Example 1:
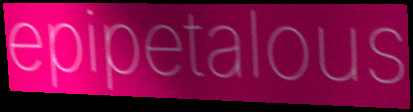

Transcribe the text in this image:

epipetalous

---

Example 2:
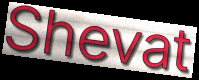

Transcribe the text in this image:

Shevat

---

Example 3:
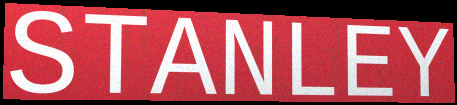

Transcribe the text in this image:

STANLEY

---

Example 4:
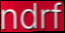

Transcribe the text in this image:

ndrf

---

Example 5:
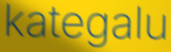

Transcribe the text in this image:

kategalu